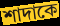
শাদাকে